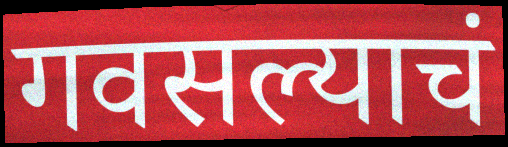
गवसल्याचं